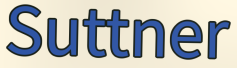
Suttner